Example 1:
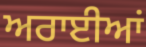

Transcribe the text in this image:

ਅਰਾਈਆਂ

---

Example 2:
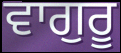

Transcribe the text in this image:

ਵਾਗੁਰੂ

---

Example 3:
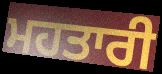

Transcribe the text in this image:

ਮਹਤਾਰੀ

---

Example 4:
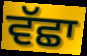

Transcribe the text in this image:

ਵੱਛਾ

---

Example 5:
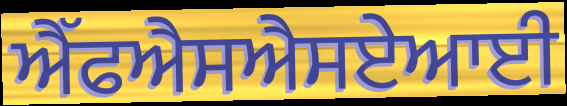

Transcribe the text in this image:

ਐੱਫਐਸਐਸਏਆਈ